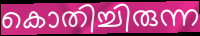
കൊതിച്ചിരുന്ന